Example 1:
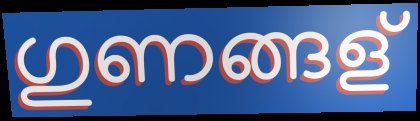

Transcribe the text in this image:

ഗുണങ്ങള്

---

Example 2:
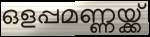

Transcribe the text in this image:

ഒളപ്പമണ്ണയ്ക്ക്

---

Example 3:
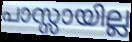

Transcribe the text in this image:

പാസ്സായില്ല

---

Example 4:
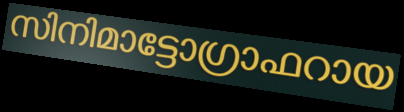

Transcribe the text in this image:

സിനിമാട്ടോഗ്രാഫറായ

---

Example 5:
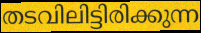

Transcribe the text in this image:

തടവിലിട്ടിരിക്കുന്ന